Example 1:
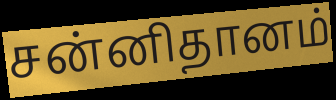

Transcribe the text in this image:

சன்னிதானம்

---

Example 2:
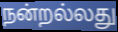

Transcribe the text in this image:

நன்றல்லது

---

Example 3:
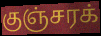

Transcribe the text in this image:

குஞ்சரக்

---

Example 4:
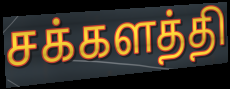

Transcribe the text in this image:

சக்களத்தி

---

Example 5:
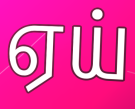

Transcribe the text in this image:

ஏய்